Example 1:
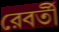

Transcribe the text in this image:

রেবর্তী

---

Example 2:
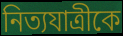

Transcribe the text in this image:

নিত্যযাত্রীকে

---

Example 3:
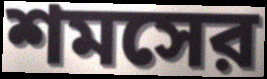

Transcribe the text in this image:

শমসের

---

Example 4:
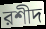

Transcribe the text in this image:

রশীদ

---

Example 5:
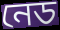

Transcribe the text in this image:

নেড